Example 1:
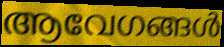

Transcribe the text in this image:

ആവേഗങ്ങൾ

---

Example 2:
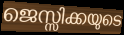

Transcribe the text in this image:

ജെസ്സിക്കയുടെ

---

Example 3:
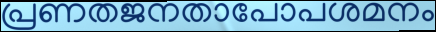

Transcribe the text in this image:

പ്രണതജനതാപോപശമനം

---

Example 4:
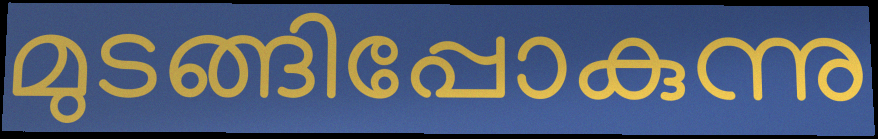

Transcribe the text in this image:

മുടങ്ങിപ്പോകുന്നു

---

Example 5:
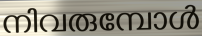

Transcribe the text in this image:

നിവരുമ്പോൾ